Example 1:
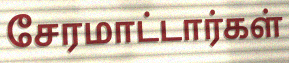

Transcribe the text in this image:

சேரமாட்டார்கள்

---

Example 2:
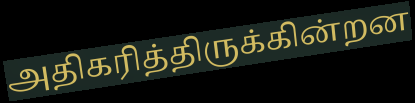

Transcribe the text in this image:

அதிகரித்திருக்கின்றன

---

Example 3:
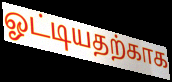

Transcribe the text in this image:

ஓட்டியதற்காக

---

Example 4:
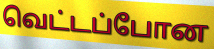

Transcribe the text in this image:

வெட்டப்போன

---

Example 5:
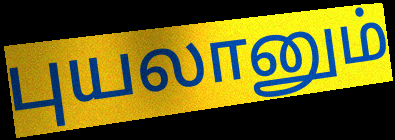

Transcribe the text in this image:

புயலானும்